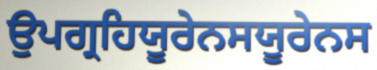
ਉਪਗ੍ਰਹਿਯੂਰੇਨਸਯੂਰੇਨਸ